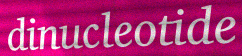
dinucleotide